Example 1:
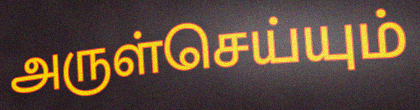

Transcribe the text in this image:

அருள்செய்யும்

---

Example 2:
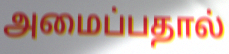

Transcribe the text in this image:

அமைப்பதால்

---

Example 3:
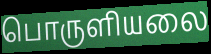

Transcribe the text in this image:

பொருளியலை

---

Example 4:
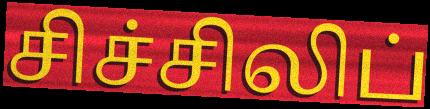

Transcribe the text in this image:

சிச்சிலிப்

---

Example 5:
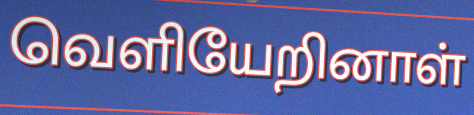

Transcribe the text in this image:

வெளியேறினாள்